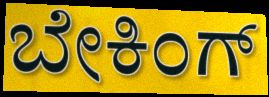
ಬೇಕಿಂಗ್